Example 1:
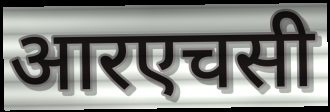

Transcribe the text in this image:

आरएचसी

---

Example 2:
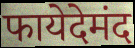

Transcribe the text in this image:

फायेदेमंद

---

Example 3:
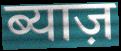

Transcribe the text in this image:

ब्याज़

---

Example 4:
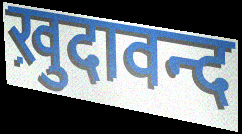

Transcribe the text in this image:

ख़ुदावन्द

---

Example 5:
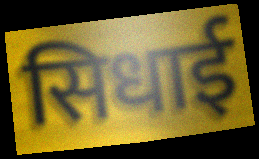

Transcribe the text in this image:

सिधाई